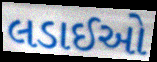
લડાઈઓ